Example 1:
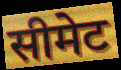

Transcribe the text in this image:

सीमेट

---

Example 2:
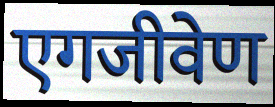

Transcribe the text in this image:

एगजीवेण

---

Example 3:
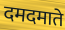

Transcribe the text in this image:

दमदमाते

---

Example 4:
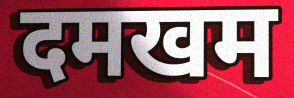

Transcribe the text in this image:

दमखम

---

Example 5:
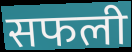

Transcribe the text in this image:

सफली